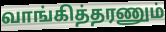
வாங்கித்தரணும்